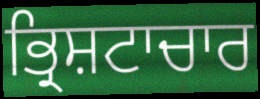
ਭ੍ਰਿਸ਼ਟਾਚਾਰ